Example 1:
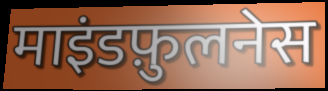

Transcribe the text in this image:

माइंडफ़ुलनेस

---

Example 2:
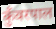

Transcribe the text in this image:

कुँवरपाल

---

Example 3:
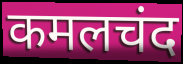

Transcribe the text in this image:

कमलचंद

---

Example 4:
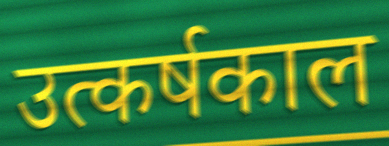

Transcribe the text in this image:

उत्कर्षकाल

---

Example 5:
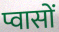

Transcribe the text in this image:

प्वासों